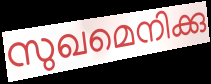
സുഖമെനിക്കു